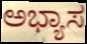
ಅಭ್ಯಾಸ